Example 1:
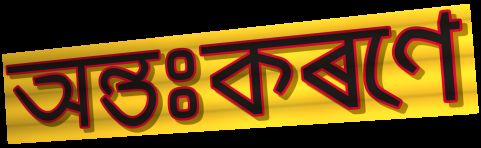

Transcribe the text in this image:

অন্তঃকৰণে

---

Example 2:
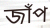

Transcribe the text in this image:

জাঁপ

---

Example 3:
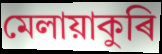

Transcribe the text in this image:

মেলায়াকুৰি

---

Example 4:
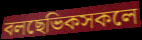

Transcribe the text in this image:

বলছেভিকসকলে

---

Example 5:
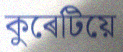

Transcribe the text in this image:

কুৰেটিয়ে